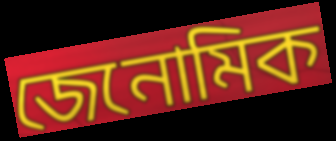
জেনোমিক